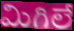
మిగిలే